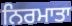
ਨਿਰਮਾਤਾ